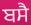
ਬਸੈ